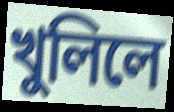
খুলিলে